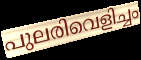
പുലരിവെളിച്ചം